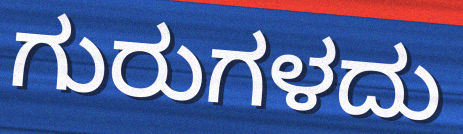
ಗುರುಗಳದು